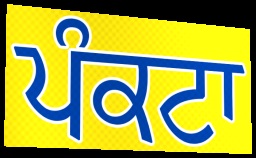
ਪੰਕਟਾ